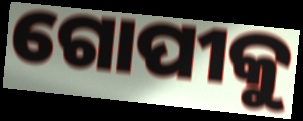
ଗୋପୀକୁ